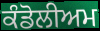
ਕੰਡੋਲੀਅਮ